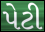
પેટી